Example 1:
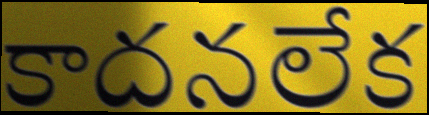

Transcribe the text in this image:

కాదనలేక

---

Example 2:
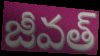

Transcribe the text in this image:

జీవత్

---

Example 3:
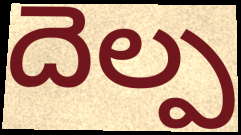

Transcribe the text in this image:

దెల్ప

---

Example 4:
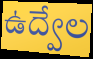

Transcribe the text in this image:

ఉద్వేల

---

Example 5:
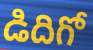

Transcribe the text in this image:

డిదిగో